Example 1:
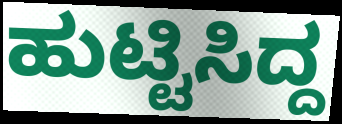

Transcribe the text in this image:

ಹುಟ್ಟಿಸಿದ್ದ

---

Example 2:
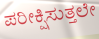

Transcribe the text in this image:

ಪರೀಕ್ಷಿಸುತ್ತಲೇ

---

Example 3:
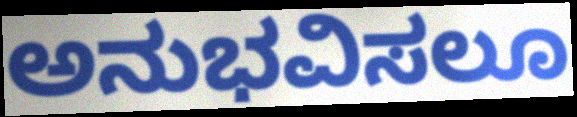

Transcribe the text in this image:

ಅನುಭವಿಸಲೂ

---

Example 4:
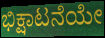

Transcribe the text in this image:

ಭಿಕ್ಷಾಟನೆಯೇ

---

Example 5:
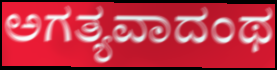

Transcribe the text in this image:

ಅಗತ್ಯವಾದಂಥ